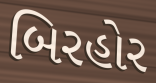
બિરહોર